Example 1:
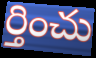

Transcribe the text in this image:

ర్తించు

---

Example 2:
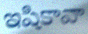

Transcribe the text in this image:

ఇషికావా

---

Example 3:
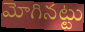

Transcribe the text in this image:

మోగినట్టు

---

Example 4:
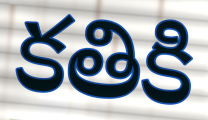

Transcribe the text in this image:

కతికి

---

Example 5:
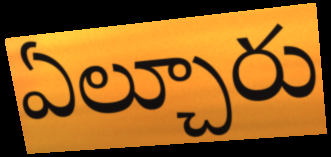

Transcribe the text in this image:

ఏల్చూరు